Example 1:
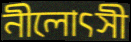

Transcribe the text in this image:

নীলোৎসী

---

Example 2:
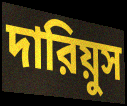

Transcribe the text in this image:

দারিয়ুস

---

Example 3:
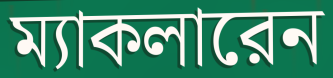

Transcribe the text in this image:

ম্যাকলারেন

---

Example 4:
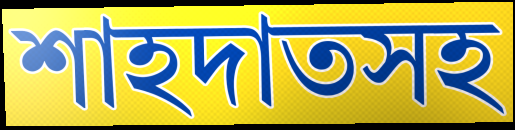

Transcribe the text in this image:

শাহদাতসহ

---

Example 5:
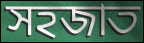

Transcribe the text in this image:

সহজাত